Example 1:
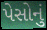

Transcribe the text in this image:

પેસોનું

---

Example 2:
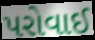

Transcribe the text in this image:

પરોવાઈ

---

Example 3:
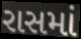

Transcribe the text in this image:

રાસમાં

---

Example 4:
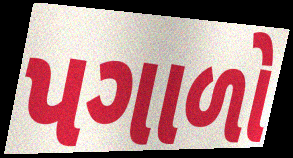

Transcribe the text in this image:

પગાળો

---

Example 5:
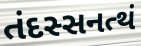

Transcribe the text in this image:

તંદસ્સનત્થં